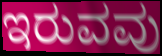
ಇರುವವು